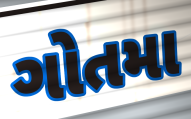
ગોતમા